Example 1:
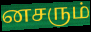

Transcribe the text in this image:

னசரும்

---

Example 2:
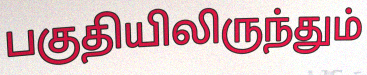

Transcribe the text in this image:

பகுதியிலிருந்தும்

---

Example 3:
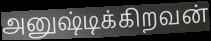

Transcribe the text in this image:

அனுஷ்டிக்கிறவன்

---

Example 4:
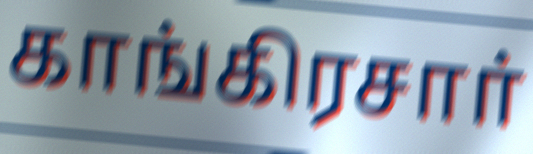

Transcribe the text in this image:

காங்கிரசார்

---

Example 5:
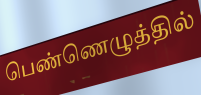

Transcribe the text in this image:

பெண்ணெழுத்தில்